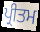
ਪ੍ਰੀਤਮ